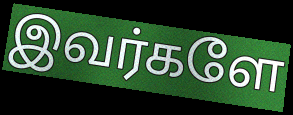
இவர்களே